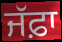
ਜੱਫ਼ਾ